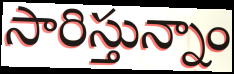
సారిస్తున్నాం